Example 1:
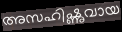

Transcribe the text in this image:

അസഹിഷ്ണുവായ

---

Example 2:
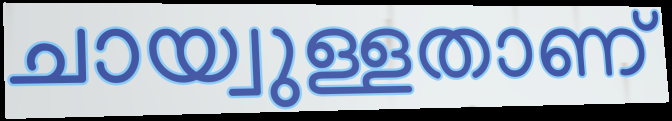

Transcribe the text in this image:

ചായ്വുള്ളതാണ്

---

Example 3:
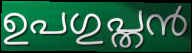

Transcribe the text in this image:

ഉപഗുപ്തൻ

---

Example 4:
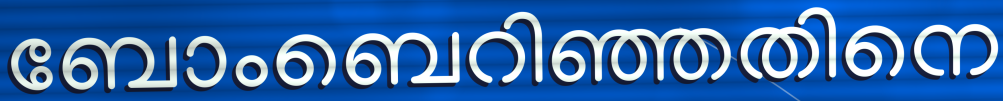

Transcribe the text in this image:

ബോംബെറിഞ്ഞതിനെ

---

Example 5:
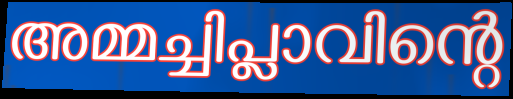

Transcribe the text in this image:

അമ്മച്ചിപ്ലാവിന്റെ